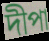
দীপা